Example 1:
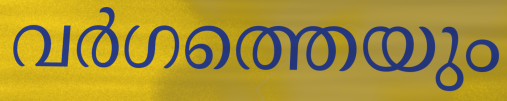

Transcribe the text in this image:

വർഗത്തെയും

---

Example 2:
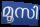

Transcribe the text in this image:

മൂസി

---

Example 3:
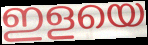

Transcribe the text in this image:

ഇളയെ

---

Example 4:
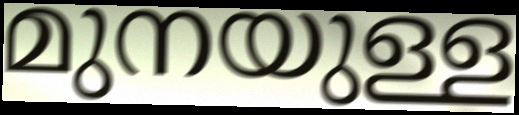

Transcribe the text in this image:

മുനയുള്ള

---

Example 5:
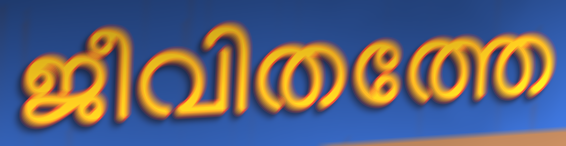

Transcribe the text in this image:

ജീവിതത്തേ